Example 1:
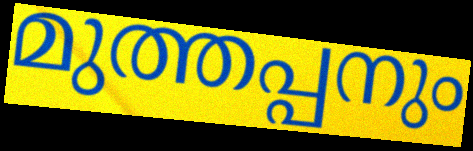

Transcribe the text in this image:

മുത്തപ്പനും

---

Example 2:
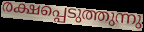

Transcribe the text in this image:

രക്ഷപ്പെടുത്തുന്നു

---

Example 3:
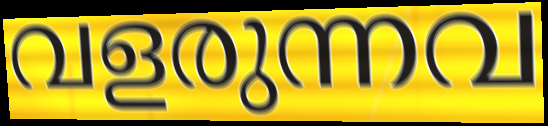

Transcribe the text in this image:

വളരുന്നവ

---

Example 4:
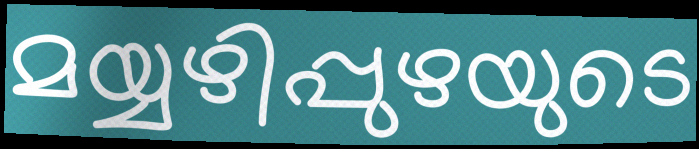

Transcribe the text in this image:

മയ്യഴിപ്പുഴയുടെ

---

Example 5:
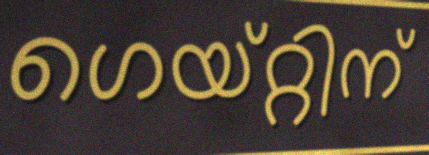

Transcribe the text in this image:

ഗെയ്റ്റിന്